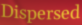
Dispersed